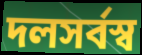
দলসর্বস্ব